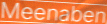
Meenaben